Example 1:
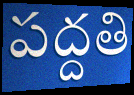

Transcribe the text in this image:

పద్దతి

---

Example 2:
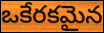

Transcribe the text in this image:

ఒకేరకమైన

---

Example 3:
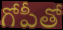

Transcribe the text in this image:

గోపీతో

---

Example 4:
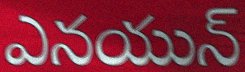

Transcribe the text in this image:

ఎనయున్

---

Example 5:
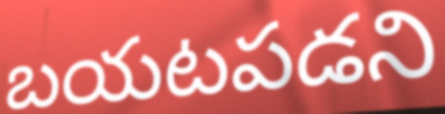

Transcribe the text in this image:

బయటపడని